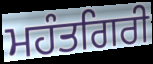
ਮਹੰਤਗਿਰੀ